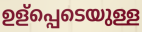
ഉള്പ്പെടെയുള്ള